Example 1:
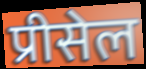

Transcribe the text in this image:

प्रीसेल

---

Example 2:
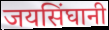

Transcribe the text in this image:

जयसिंघानी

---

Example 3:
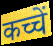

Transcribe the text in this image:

कच्चें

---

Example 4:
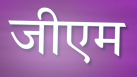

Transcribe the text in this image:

जीएम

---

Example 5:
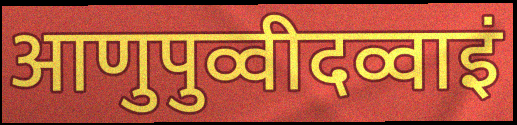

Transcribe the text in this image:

आणुपुव्वीदव्वाइं